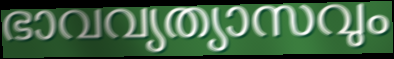
ഭാവവ്യത്യാസവും